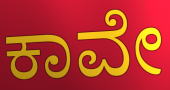
ಕಾವೇ